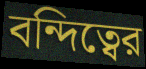
বন্দিত্বের